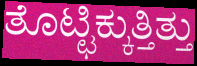
ತೊಟ್ಟಿಕ್ಕುತ್ತಿತ್ತು